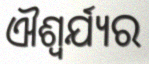
ଐଶ୍ଵର୍ଯ୍ୟର